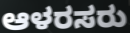
ಆಳರಸರು